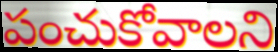
పంచుకోవాలని